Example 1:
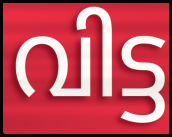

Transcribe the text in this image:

വിട്ട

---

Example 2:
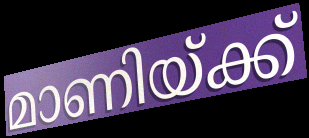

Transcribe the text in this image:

മാണിയ്ക്ക്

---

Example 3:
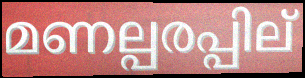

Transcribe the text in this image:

മണല്പരപ്പില്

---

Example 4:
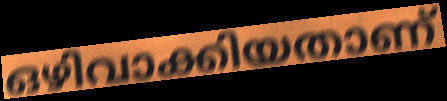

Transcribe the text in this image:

ഒഴിവാക്കിയതാണ്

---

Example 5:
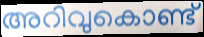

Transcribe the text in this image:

അറിവുകൊണ്ട്